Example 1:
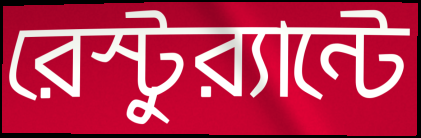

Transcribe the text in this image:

রেস্টুর‍্যান্টে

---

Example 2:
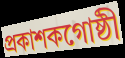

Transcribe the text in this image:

প্রকাশকগোষ্ঠী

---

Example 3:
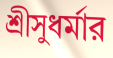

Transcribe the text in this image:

শ্রীসুধর্মার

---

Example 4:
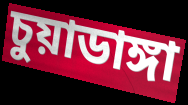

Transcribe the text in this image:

চুয়াডাঙ্গা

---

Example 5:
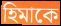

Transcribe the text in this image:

হিমাকে